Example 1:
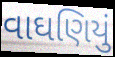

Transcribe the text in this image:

વાઘણિયું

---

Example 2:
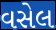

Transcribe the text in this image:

વસેલ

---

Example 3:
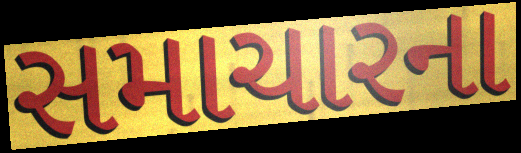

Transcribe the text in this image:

સમાચારના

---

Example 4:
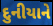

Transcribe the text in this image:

દુનીયાને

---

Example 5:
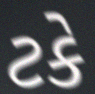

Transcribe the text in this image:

ટકે